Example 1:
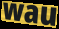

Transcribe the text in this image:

wau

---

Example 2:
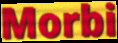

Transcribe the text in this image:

Morbi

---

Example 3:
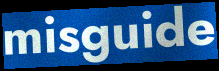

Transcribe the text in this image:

misguide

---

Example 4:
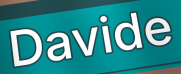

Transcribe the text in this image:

Davide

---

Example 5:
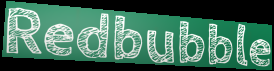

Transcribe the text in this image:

Redbubble